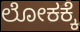
ಲೋಕಕ್ಕೆ